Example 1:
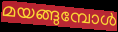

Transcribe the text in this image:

മയങ്ങുമ്പോൾ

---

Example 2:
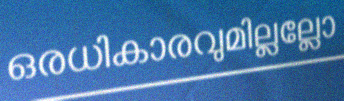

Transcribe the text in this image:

ഒരധികാരവുമില്ലല്ലോ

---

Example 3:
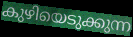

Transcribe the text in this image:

കുഴിയെടുക്കുന്ന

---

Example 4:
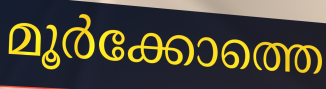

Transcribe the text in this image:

മൂർക്കോത്തെ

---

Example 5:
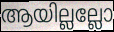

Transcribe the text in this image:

ആയില്ലല്ലോ